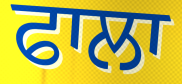
ਫਾਲਾ